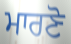
ਮਾਰਣੋ